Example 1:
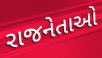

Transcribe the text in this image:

રાજનેતાઓ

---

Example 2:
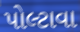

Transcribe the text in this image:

પોલ્ટાવા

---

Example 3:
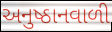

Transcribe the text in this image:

અનુષ્ઠાનવાળી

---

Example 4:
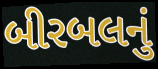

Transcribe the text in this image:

બીરબલનું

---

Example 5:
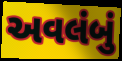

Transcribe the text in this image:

અવલંબું